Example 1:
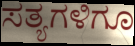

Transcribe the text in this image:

ಸತ್ಯಗಳಿಗೂ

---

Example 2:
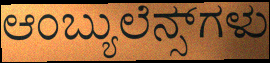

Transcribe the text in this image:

ಆಂಬ್ಯುಲೆನ್ಸ್‌ಗಳು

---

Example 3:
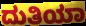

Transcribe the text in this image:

ದುತಿಯಾ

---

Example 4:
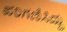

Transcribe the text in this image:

ಪರಿಗಣಿಸಿದ್ದು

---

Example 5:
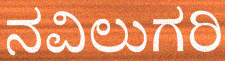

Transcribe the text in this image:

ನವಿಲುಗರಿ